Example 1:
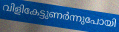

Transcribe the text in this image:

വിളികേട്ടുണർന്നുപോയി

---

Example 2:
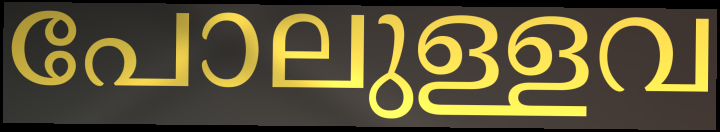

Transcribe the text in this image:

പോലുള്ളവ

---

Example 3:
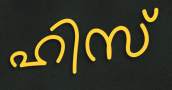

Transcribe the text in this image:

ഹിസ്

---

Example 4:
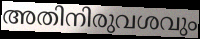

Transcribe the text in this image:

അതിനിരുവശവും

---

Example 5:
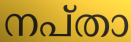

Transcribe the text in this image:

നപ്താ